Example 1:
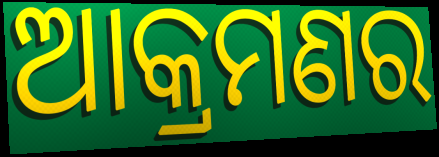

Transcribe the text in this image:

ଆକ୍ରମଣର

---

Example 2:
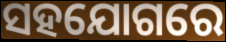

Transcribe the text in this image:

ସହଯୋଗରେ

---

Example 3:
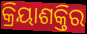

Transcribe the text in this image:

କ୍ରିୟାଶକ୍ତିର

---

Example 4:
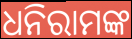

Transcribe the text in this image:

ଧନିରାମଙ୍କ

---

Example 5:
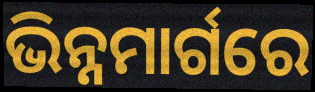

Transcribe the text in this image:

ଭିନ୍ନମାର୍ଗରେ